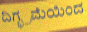
ದಿಗ್ಭ್ರಮೆಯಿಂದ